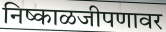
निष्काळजीपणावर